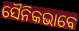
ସୈନିକଭାବେ